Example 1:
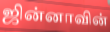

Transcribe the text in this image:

ஜின்னாவின்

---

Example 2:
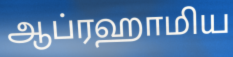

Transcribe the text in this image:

ஆப்ரஹாமிய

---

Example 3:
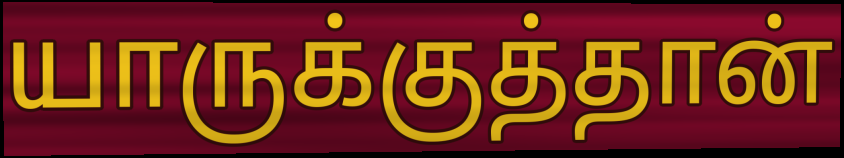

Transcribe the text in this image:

யாருக்குத்தான்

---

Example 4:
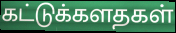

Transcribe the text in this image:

கட்டுக்களதகள்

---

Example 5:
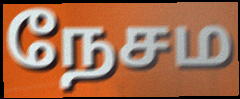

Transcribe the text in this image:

நேசம